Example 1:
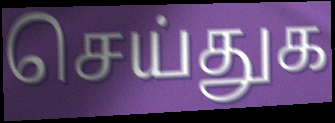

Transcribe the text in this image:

செய்துக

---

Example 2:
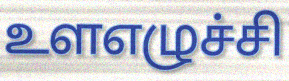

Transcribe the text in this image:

உளஎழுச்சி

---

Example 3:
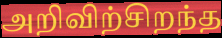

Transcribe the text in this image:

அறிவிற்சிறந்த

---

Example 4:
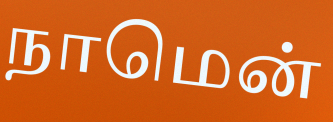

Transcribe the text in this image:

நாமென்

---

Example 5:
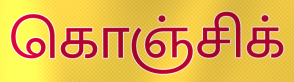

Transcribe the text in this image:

கொஞ்சிக்